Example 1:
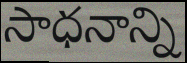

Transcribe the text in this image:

సాధనాన్ని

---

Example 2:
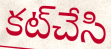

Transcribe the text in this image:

కట్‌చేసి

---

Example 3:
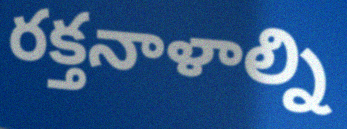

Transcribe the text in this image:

రక్తనాళాల్ని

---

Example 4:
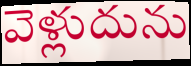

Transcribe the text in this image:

వెళ్లుదును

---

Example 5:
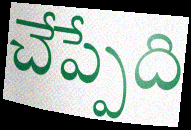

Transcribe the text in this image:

చేప్పేది